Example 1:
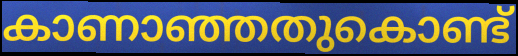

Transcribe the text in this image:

കാണാഞ്ഞതുകൊണ്ട്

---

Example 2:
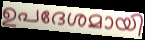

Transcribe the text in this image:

ഉപദേശമായി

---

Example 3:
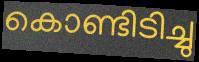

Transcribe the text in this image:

കൊണ്ടിടിച്ചു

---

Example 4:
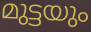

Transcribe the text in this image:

മുട്ടയും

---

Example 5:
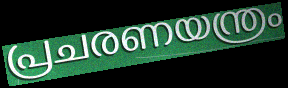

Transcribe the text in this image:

പ്രചരണയന്ത്രം